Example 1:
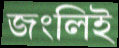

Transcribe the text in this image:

জংলিই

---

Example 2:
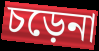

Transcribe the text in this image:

চড়েনা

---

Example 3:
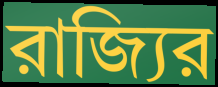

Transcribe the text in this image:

রাজ্যির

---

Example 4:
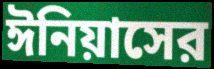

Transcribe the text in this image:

ঈনিয়াসের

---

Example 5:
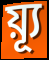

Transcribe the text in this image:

য়্যূ